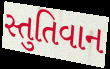
સ્તુતિવાન